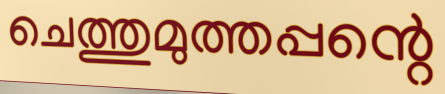
ചെത്തുമുത്തപ്പന്റെ